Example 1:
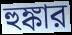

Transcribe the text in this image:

হুঙ্কার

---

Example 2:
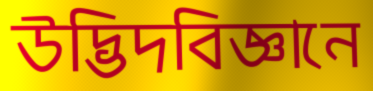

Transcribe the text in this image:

উদ্ভিদবিজ্ঞানে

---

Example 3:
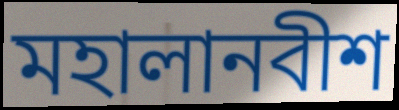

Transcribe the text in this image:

মহালানবীশ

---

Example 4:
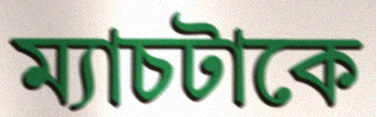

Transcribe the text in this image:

ম্যাচটাকে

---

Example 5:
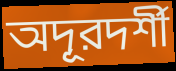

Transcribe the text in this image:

অদূরদর্শী